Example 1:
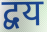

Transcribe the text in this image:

द्वय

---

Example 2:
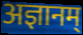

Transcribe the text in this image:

अज्ञानम्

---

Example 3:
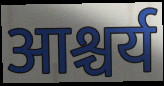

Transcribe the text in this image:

आश्चर्य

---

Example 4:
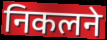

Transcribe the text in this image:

निकलने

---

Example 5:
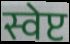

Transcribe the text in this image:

स्वेप्ट